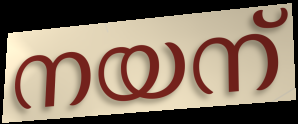
നയന്